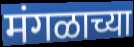
मंगळाच्या